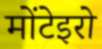
मोंटेइरो